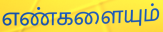
எண்களையும்